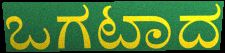
ಒಗಟಾದ